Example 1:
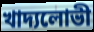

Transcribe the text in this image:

খাদ্যলোভী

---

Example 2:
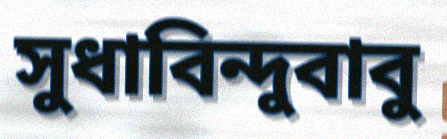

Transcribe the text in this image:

সুধাবিন্দুবাবু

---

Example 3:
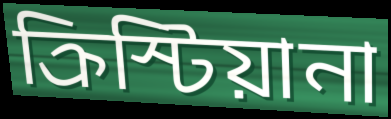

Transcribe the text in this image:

ক্রিস্টিয়ানা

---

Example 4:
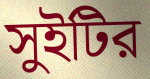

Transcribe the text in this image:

সুইটির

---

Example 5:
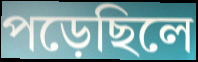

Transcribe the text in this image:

পড়েছিলে